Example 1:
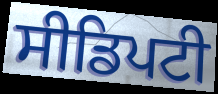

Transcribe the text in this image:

ਸੀਡਿਪਟੀ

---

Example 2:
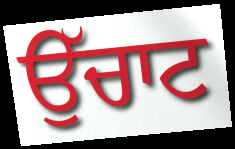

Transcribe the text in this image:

ਉੱਚਾਟ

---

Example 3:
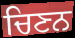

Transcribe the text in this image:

ਚਿਣਨ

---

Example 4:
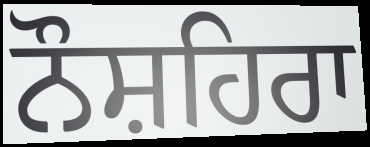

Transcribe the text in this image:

ਨੌਸ਼ਹਿਰਾ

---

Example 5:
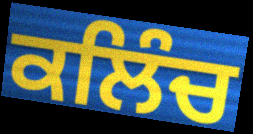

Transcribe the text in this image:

ਕਲਿੰਚ